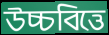
উচ্চবিত্তে